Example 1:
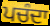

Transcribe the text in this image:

ਪਚੰਦਾ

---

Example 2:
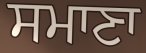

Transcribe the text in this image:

ਸਮਾਣਾ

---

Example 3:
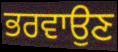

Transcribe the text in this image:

ਭਰਵਾਉਣ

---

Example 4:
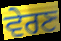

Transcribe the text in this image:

ਵੇਰਣ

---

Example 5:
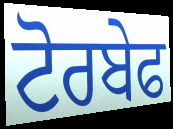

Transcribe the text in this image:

ਟੋਰਬੇਫ